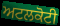
ਅਟਲਕੋਟੀ